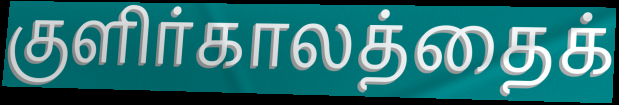
குளிர்காலத்தைக்